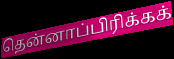
தென்னாப்பிரிக்கக்